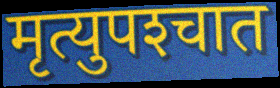
मृत्युपश्‍चात